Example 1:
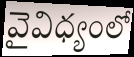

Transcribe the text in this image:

వైవిధ్యంలో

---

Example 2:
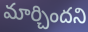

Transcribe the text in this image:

మార్చిందని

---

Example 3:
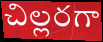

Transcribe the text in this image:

చిల్లరగా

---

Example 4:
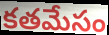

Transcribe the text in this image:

కతమేసం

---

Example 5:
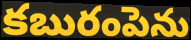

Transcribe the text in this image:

కబురంపెను